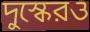
দুস্কেরও